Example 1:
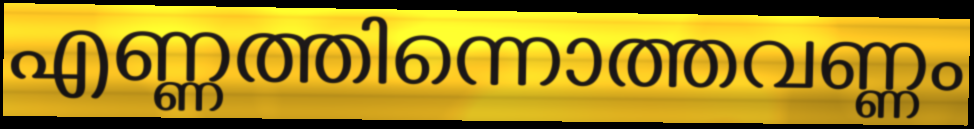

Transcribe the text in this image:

എണ്ണത്തിന്നൊത്തവണ്ണം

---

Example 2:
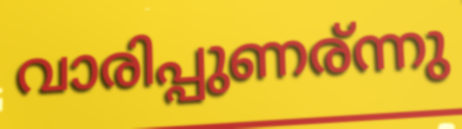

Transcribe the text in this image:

വാരിപ്പുണര്ന്നു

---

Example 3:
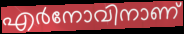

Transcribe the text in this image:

എർനോവിനാണ്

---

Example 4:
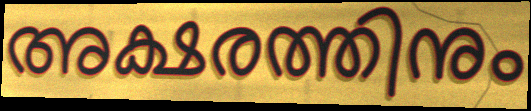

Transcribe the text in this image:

അക്ഷരത്തിനും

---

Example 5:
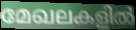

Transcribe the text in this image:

മേഖലകളിൽ